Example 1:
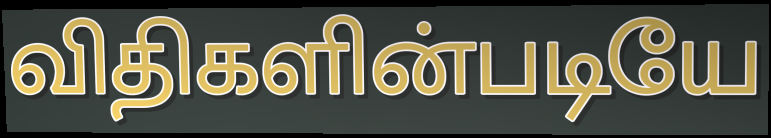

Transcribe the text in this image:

விதிகளின்படியே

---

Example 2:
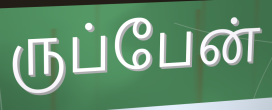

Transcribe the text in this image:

ருப்பேன்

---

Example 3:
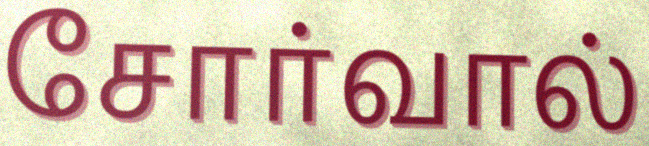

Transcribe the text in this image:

சோர்வால்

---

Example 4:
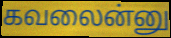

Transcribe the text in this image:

கவலைன்னு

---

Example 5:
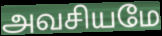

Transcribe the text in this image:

அவசியமே